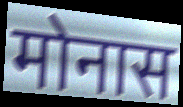
मोनास